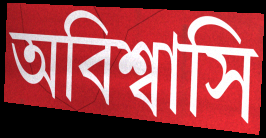
অবিশ্বাসি